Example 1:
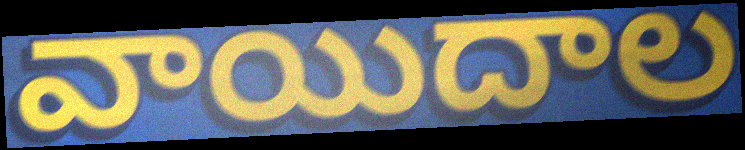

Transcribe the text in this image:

వాయిదాల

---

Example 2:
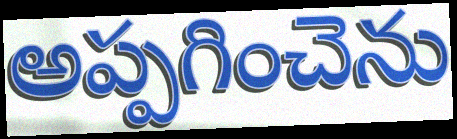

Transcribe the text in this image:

అప్పగించెను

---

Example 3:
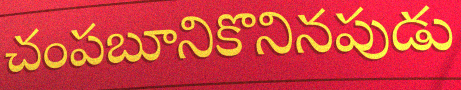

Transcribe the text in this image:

చంపబూనికొనినపుడు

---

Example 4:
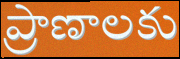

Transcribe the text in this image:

ప్రాణాలకు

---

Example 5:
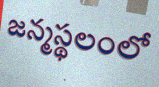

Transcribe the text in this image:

జన్మస్థలంలో